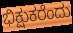
ಭಿಕ್ಷುಕರೆಂದು